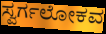
ಸ್ವರ್ಗಲೋಕವ